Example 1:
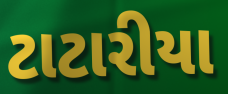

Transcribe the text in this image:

ટાટારીયા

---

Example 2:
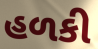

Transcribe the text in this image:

હળકી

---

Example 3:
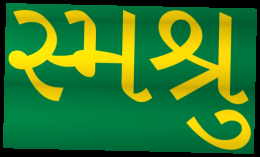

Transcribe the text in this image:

સ્મશ્રુ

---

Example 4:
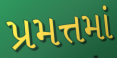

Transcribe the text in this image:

પ્રમત્તમાં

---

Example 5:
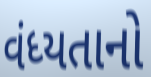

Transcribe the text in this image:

વંધ્યતાનો